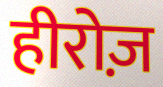
हीरोज़